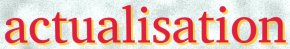
actualisation